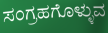
ಸಂಗ್ರಹಗೊಳ್ಳುವ